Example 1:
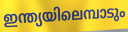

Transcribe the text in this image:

ഇന്ത്യയിലെമ്പാടും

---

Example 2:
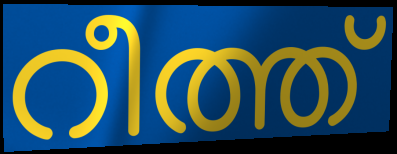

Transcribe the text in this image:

റീത്ത്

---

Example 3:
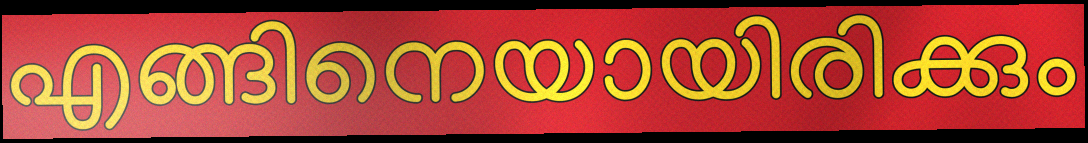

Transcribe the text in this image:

എങ്ങിനെയായിരിക്കും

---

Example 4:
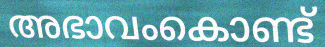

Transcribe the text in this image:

അഭാവംകൊണ്ട്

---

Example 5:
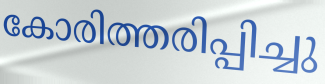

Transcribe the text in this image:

കോരിത്തരിപ്പിച്ചു